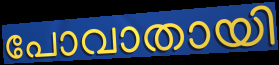
പോവാതായി